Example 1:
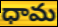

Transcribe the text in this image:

ధామ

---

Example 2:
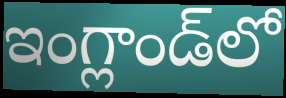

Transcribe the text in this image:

ఇంగ్లాండ్‌లో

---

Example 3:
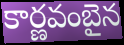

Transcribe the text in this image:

కార్ణవంబైన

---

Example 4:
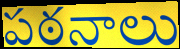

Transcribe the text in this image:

పఠనాలు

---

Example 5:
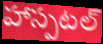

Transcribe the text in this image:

హాస్పటల్